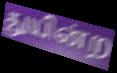
துயின்ற